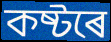
কষ্টৰে